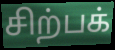
சிற்பக்